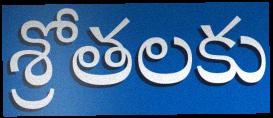
శ్రోతలకు